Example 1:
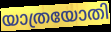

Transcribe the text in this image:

യാത്രയോതി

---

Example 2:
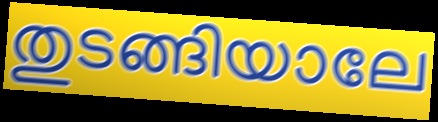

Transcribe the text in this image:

തുടങ്ങിയാലേ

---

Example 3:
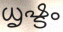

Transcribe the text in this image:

ധൃഷ്ടം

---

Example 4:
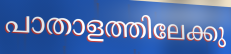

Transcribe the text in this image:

പാതാളത്തിലേക്കു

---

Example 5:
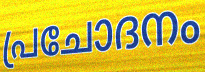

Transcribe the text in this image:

പ്രചോദനം